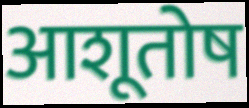
आशूतोष